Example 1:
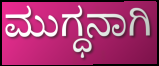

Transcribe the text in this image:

ಮುಗ್ಧನಾಗಿ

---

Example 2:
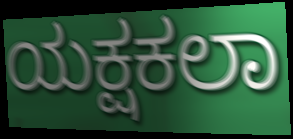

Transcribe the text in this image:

ಯಕ್ಷಕಲಾ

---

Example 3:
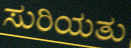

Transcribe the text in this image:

ಸುರಿಯತು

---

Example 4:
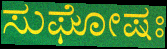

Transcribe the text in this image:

ಸುಘೋಷಃ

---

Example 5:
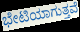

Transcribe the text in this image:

ಭೇಟಿಯಾಗುತ್ತವೆ